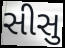
સીસુ